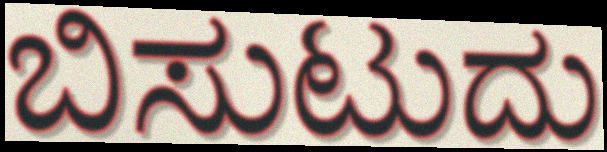
ಬಿಸುಟುದು